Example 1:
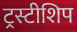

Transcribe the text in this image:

ट्रस्टीशिप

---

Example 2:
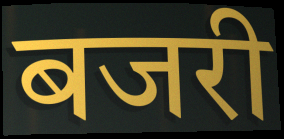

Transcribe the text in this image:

बजरी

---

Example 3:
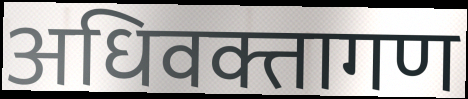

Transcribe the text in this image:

अधिवक्तागण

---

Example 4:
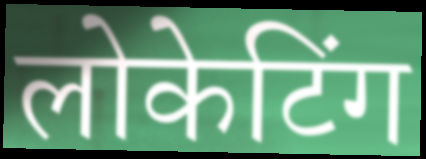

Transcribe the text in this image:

लोकेटिंग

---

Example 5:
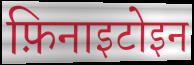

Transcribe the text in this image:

फ़िनाइटोइन